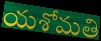
యశోమతి